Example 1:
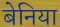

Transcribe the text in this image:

बेनिया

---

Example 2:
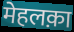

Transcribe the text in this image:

मेहलक़ा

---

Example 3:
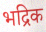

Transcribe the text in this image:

भद्रिक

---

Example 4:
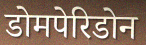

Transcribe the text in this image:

डोमपेरिडोन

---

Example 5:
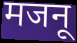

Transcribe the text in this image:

मजनू